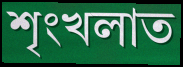
শৃংখলাত